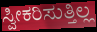
ಸ್ವೀಕರಿಸುತ್ತಿಲ್ಲ